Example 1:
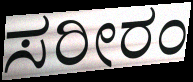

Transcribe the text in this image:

ಸರೀರಂ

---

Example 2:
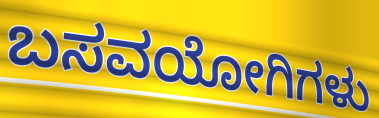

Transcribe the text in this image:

ಬಸವಯೋಗಿಗಳು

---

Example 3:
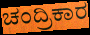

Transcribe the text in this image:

ಚಂದ್ರಿಕಾರ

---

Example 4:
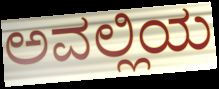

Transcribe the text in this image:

ಅವಲ್ಲಿಯ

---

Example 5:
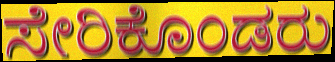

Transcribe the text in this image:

ಸೇರಿಕೊಂಡರು